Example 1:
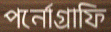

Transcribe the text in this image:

পর্নোগ্রাফি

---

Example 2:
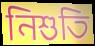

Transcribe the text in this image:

নিশুতি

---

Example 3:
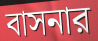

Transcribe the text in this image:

বাসনার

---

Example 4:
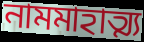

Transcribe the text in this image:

নামমাহাত্ম্য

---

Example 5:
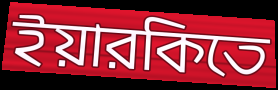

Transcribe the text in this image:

ইয়ারকিতে